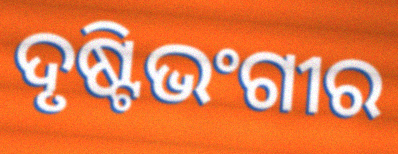
ଦୃଷ୍ଟିଭଂଗୀର